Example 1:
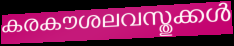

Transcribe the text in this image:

കരകൗശലവസ്തുക്കൾ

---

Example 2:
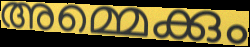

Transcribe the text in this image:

അമ്മെക്കും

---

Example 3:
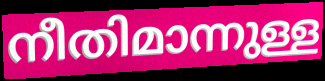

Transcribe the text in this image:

നീതിമാന്നുള്ള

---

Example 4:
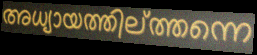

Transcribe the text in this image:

അധ്യായത്തില്ത്തന്നെ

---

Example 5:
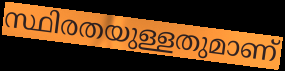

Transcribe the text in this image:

സ്ഥിരതയുള്ളതുമാണ്